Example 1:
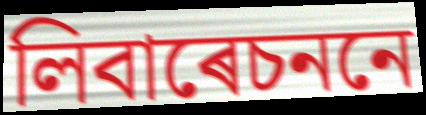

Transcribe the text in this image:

লিবাৰেচননে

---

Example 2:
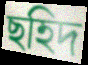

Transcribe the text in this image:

ছহিদ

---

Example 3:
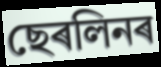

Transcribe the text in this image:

ছেৰলিনৰ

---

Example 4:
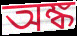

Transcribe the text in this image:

অঙ্ক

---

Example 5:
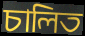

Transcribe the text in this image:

চালিত